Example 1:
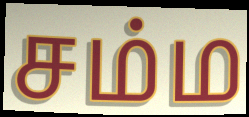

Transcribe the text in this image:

சம்ம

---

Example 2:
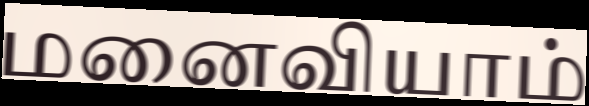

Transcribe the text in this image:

மனைவியாம்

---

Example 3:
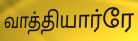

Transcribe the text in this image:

வாத்தியார்ரே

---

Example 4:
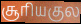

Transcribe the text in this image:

சூரியகுல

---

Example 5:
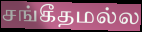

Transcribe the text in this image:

சங்கீதமல்ல